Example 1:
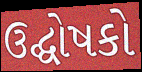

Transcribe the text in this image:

ઉદ્ઘોષકો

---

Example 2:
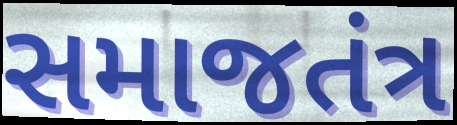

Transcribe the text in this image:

સમાજતંત્ર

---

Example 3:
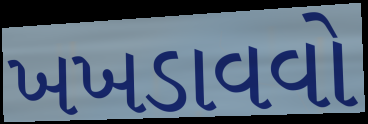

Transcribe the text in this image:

ખખડાવવો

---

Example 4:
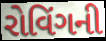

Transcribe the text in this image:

રોવિંગની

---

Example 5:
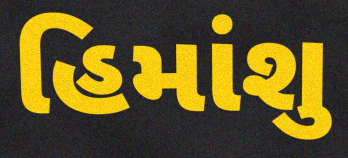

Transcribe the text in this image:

હિમાંશુ